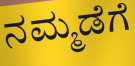
ನಮ್ಮಡೆಗೆ